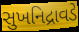
સુખનિદ્રાવડે